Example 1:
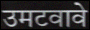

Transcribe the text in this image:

उमटवावे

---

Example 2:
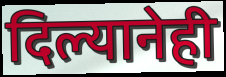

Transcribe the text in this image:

दिल्यानेही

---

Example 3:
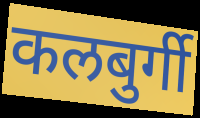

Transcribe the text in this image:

कलबुर्गी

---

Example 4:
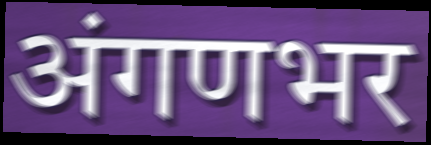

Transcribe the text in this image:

अंगणभर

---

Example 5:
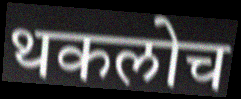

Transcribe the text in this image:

थकलोच